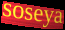
soseya